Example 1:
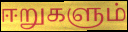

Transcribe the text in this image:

ஈறுகளும்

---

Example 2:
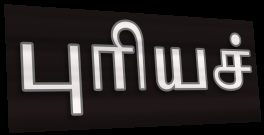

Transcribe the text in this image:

புரியச்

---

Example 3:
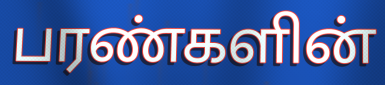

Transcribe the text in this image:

பரண்களின்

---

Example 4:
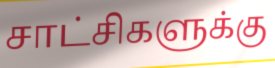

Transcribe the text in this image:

சாட்சிகளுக்கு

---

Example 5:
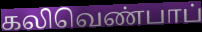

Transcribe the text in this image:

கலிவெண்பாப்